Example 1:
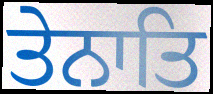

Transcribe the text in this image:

ਤੇਨਾਤਿ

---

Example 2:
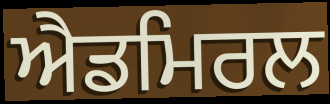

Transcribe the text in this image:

ਐਡਮਿਰਲ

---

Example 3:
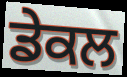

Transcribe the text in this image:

ਡੇਕਲ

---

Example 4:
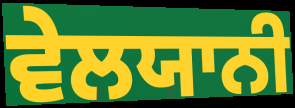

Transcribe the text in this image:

ਵੇਲਯਾਨੀ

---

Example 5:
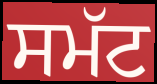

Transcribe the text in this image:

ਸਮੱਟ